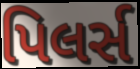
પિલર્સ